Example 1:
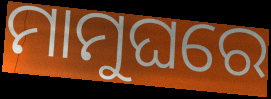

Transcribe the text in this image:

ମାମୁଘରେ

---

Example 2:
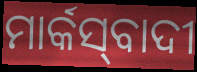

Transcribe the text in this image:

ମାର୍କସ୍‍ବାଦୀ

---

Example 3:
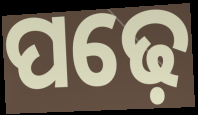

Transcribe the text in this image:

ପଢ଼େ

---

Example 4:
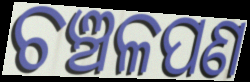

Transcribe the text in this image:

ଚଞ୍ଚଳପଣ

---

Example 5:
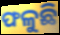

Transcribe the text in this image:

ଫଳୁଛି